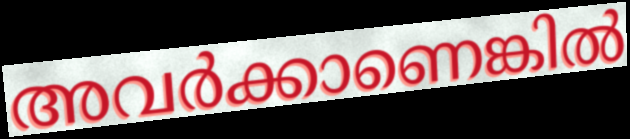
അവർക്കാണെങ്കിൽ